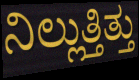
ನಿಲ್ಲುತ್ತಿತ್ತು